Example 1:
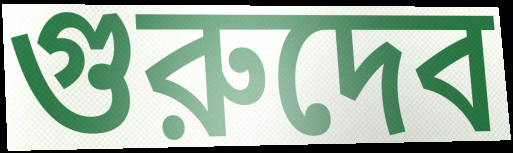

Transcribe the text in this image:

গুরুদেব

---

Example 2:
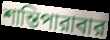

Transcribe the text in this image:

শান্তিপারাবার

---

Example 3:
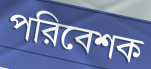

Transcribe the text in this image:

পরিবেশক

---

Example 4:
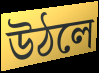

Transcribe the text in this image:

উঠলে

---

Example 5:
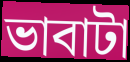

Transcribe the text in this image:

ভাবাটা